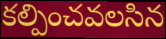
కల్పించవలసిన